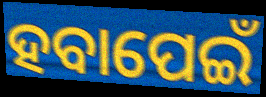
ହବାପେଇଁ